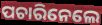
ପଚାରିନେଲେ